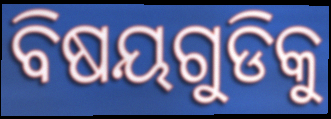
ବିଷୟଗୁଡିକୁ